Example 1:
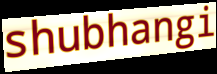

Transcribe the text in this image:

shubhangi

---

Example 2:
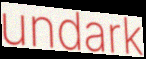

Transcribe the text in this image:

undark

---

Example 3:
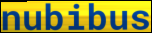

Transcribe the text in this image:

nubibus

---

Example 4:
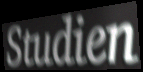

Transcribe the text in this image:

Studien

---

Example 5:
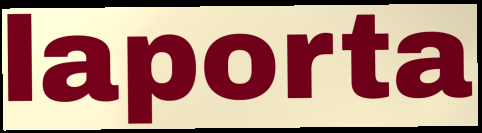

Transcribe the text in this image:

laporta